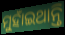
ମୁହାଁଇଥାନ୍ତି